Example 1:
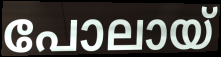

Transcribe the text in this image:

പോലായ്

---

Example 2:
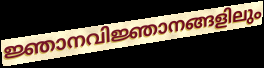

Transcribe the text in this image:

ജ്ഞാനവിജ്ഞാനങ്ങളിലും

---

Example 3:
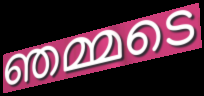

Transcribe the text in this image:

ഞമ്മടെ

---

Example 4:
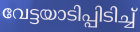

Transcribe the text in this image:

വേട്ടയാടിപ്പിടിച്ച്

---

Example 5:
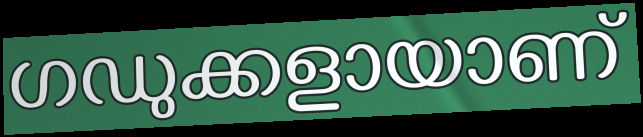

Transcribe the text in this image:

ഗഡുക്കളായാണ്